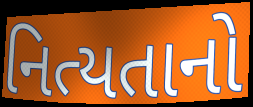
નિત્યતાનો